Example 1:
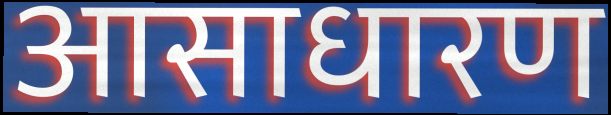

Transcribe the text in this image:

आसाधारण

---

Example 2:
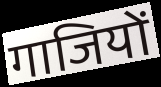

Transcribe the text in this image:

गाजियों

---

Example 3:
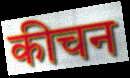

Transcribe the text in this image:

कीचन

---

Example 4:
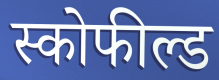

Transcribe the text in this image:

स्कोफील्ड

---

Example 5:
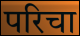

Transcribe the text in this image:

परिचा